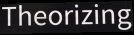
Theorizing